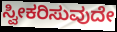
ಸ್ವೀಕರಿಸುವುದೇ